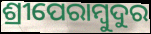
ଶ୍ରୀପେରାମ୍ବୁଦୁର